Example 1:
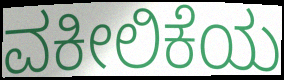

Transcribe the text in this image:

ವಕೀಲಿಕೆಯ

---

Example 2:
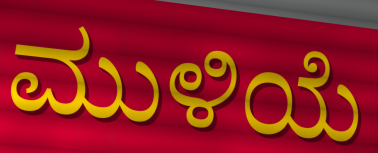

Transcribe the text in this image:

ಮುಳಿಯೆ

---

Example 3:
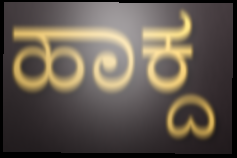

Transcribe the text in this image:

ಹಾಕ್ದ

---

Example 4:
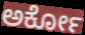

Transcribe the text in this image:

ಅರ್ಕೋ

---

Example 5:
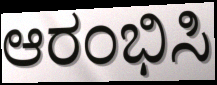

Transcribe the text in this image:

ಆರಂಭಿಸಿ